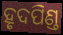
ହୃଦପିଣ୍ଡ